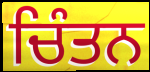
ਚਿੰਤਨ